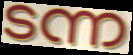
ടന്ന